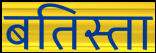
बतिस्ता